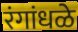
रंगांधळे